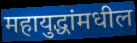
महायुद्धांमधील